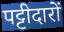
पट्टीदारों